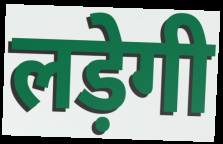
लड़ेगी